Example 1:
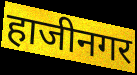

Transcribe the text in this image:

हाजीनगर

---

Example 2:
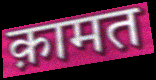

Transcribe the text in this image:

क़ामत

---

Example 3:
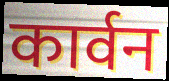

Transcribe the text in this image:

कार्वन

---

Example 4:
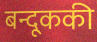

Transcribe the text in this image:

बन्दूककी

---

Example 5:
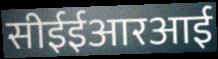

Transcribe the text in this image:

सीईईआरआई